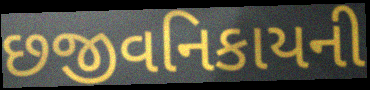
છજીવનિકાયની